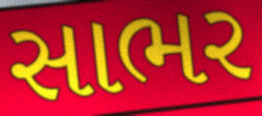
સાભર